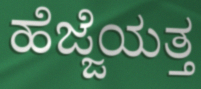
ಹೆಜ್ಜೆಯತ್ತ